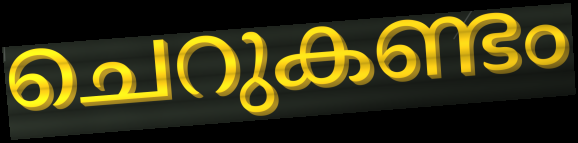
ചെറുകണ്ടം